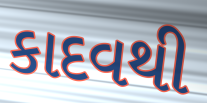
કાદવથી